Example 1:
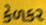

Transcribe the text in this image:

કેળકર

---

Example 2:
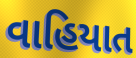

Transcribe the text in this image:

વાહિયાત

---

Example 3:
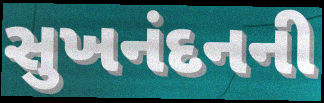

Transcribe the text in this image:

સુખનંદનની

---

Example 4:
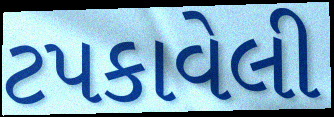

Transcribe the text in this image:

ટપકાવેલી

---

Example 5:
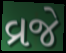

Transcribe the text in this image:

વ્રજે